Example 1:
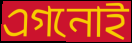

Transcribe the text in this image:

এগনোই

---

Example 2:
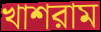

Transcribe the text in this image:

খাশরাম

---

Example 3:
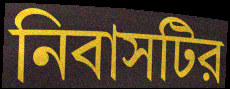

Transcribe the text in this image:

নিবাসটির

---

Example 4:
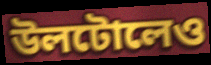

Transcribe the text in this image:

উলটোলেও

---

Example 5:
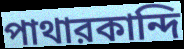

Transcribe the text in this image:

পাথারকান্দি